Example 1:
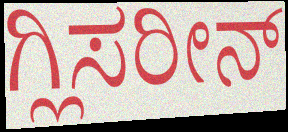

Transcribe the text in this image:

ಗ್ಲಿಸರೀನ್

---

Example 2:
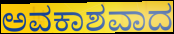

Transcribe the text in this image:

ಅವಕಾಶವಾದ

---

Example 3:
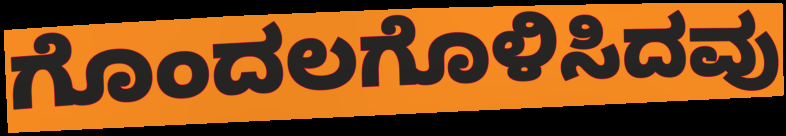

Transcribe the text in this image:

ಗೊಂದಲಗೊಳಿಸಿದವು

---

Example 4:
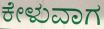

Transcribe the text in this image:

ಕೇಳುವಾಗ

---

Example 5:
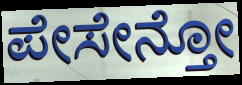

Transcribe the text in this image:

ಪೇಸೇನ್ತೋ